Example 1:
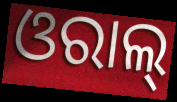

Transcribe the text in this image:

ଓରାଲ୍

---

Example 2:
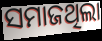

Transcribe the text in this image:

ସମାଜଥିଲା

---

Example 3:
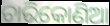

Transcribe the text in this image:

ଚାରିକୋଣିଆ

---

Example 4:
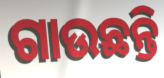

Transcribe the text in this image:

ଗାଉଛନ୍ତି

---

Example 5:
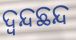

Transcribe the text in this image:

ଦ୍ୱନ୍ଦଛନ୍ଦ